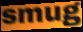
smug